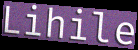
Lihile